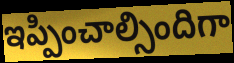
ఇప్పించాల్సిందిగా